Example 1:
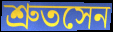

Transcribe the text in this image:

শ্রুতসেন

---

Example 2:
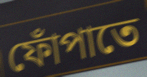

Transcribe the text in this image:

ফোঁপাতে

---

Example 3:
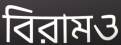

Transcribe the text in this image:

বিরামও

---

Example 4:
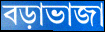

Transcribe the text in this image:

বড়াভাজা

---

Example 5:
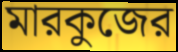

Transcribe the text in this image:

মারকুজের